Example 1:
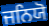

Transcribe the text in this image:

ਜਨਿਯੋ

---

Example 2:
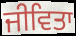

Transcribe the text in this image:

ਜੀਵਿਤਾ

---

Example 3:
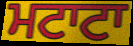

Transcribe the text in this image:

ਮਟਾਟਾ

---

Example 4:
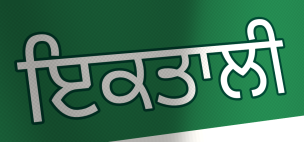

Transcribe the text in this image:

ਇਕਤਾਲੀ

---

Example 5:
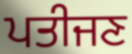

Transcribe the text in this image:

ਪਤੀਜਣ